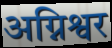
अग्निश्वर